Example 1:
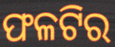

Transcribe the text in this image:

ଫଳଟିର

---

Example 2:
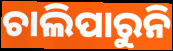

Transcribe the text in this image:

ଚାଲିପାରୁନି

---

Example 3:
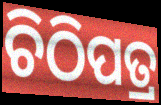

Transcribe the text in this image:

ଚିଠିପତ୍ର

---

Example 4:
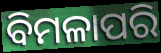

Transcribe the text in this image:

ବିମଳାପରି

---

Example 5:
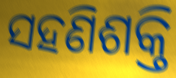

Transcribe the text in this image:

ସହଣିଶକ୍ତି